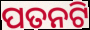
ପତନଟି